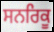
ਸਨਰਿਕੂ